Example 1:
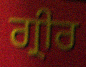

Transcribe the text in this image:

ਗ੍ਰੀਰ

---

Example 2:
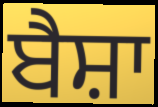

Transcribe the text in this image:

ਬੈਸ਼ਾ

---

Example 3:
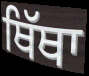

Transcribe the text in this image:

ਥਿੱਥਾ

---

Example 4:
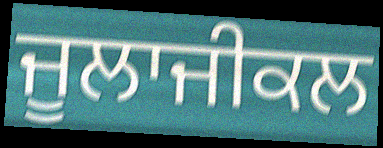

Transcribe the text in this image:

ਜੂਲਾਜੀਕਲ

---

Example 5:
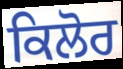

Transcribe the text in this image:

ਕਿਲੋਰ